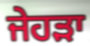
ਜੇਹੜਾ